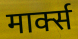
मार्क्स